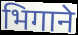
भिगाने